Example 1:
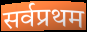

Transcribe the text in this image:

सर्वप्रथम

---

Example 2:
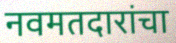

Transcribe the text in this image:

नवमतदारांचा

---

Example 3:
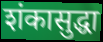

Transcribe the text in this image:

शंकासुद्धा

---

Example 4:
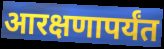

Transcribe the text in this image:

आरक्षणापर्यंत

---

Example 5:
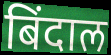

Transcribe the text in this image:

बिंदाल